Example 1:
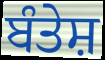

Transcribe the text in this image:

ਬੰਤੇਸ਼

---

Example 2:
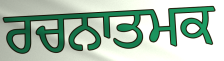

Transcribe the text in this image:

ਰਚਨਾਤਮਕ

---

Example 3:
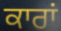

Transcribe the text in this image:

ਕਾਰਾਂ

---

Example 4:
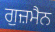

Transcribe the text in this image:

ਗੁਜ਼ਮੈਨ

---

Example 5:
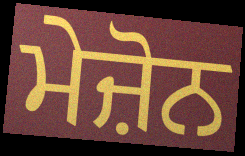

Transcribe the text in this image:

ਮੇਜ਼ੋਨ